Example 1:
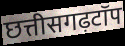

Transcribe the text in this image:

छत्तीसगढ़टॉप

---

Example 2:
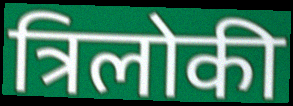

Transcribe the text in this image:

त्रिलोकी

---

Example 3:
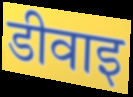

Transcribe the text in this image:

डीवाइ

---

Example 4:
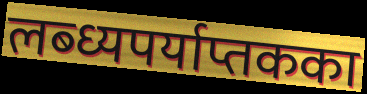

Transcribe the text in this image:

लब्ध्यपर्याप्तकका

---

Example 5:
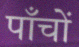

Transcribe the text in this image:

पाँचों